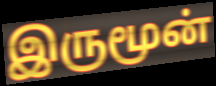
இருமூன்